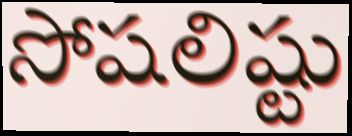
సోషలిష్టు